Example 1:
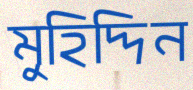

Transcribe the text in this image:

মুহিদ্দিন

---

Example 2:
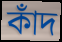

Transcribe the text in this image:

কাঁদ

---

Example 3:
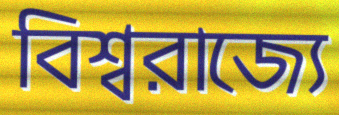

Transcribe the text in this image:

বিশ্বরাজ্যে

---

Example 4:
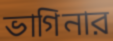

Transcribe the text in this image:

ভাগিনার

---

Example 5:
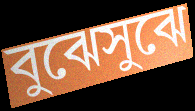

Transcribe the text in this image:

বুঝেসুঝে